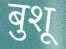
बुशू